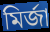
মিৰ্জা